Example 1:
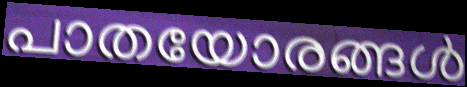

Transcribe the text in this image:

പാതയോരങ്ങൾ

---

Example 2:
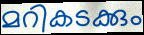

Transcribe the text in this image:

മറികടക്കും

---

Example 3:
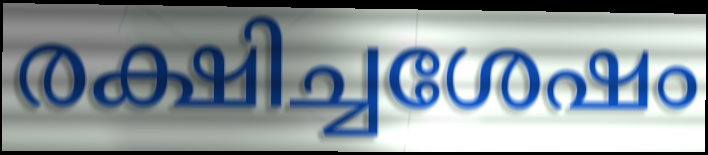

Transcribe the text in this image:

രക്ഷിച്ചശേഷം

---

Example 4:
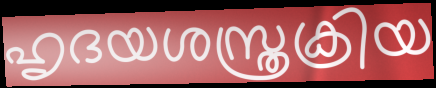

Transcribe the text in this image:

ഹൃദയശസ്ത്രക്രിയ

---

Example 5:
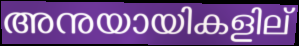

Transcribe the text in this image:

അനുയായികളില്